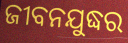
ଜୀବନଯୁଦ୍ଧର